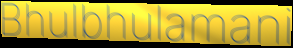
Bhulbhulamani